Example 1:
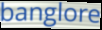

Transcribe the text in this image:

banglore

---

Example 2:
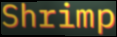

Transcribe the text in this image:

Shrimp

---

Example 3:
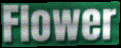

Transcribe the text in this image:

Flower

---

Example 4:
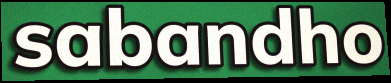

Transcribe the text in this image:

sabandho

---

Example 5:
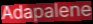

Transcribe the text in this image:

Adapalene